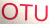
OTU